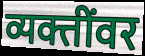
व्यक्तींवर